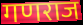
गणराज